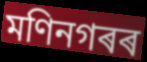
মণিনগৰৰ